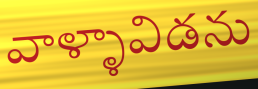
వాళ్ళావిడను